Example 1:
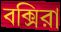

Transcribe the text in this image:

বক্সিরা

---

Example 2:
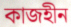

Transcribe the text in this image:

কাজহীন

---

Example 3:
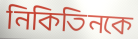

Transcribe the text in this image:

নিকিতিনকে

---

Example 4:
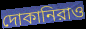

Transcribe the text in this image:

দোকানিরাও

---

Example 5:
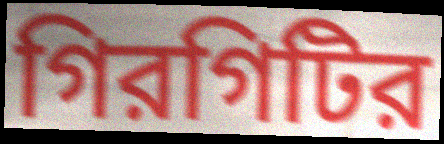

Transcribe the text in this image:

গিরগিটির